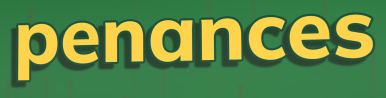
penances